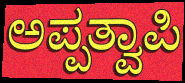
ಅಪ್ಪತ್ವಾಪಿ